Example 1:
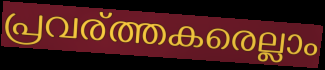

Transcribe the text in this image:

പ്രവര്ത്തകരെല്ലാം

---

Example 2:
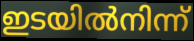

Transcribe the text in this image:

ഇടയിൽനിന്ന്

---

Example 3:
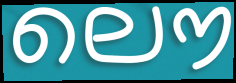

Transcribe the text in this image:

ലൌ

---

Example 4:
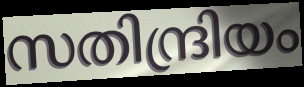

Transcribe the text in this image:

സതിന്ദ്രിയം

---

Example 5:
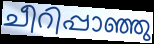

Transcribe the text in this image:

ചീറിപ്പാഞ്ഞു